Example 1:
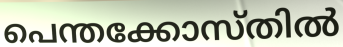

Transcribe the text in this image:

പെന്തക്കോസ്തിൽ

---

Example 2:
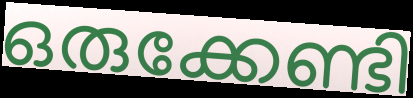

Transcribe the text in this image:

ഒരുക്കേണ്ടി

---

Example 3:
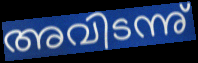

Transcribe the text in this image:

അവിടന്നു്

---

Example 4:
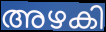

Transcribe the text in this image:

അഴകി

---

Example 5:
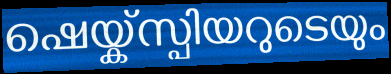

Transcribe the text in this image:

ഷെയ്ക്സ്പിയറുടെയും